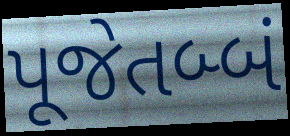
પૂજેતબ્બં